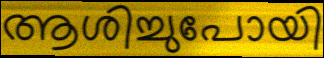
ആശിച്ചുപോയി